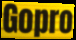
Gopro